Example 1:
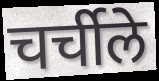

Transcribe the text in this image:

चर्चीले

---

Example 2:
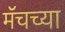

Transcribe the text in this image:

मॅचच्या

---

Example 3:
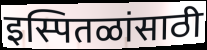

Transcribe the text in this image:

इस्पितळांसाठी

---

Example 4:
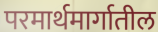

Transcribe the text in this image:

परमार्थमार्गातील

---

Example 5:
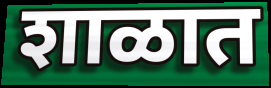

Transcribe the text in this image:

शाळात